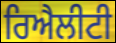
ਰਿਐਲੀਟੀ